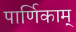
पार्णिकाम्